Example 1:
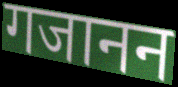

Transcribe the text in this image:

गजानन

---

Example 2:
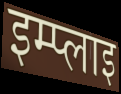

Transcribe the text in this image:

इम्प्लाइ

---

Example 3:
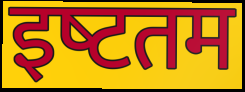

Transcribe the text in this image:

इष्‍टतम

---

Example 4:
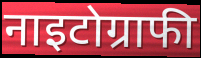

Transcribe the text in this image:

नाइटोग्राफी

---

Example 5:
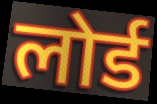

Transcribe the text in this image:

लोर्ड